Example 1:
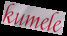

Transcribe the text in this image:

kumele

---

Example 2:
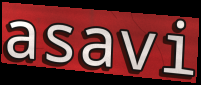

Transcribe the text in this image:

asavi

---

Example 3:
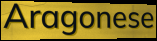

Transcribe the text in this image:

Aragonese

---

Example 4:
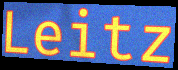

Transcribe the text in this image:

Leitz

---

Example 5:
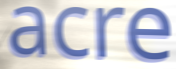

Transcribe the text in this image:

acre